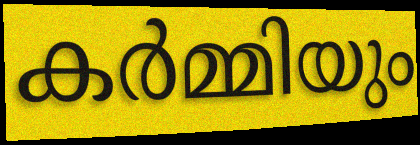
കർമ്മിയും